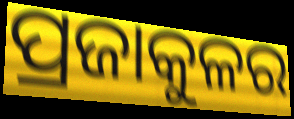
ପ୍ରଜାକୁଳର